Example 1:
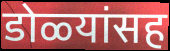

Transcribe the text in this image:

डोळ्यांसह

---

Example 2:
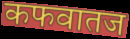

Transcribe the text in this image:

कफवातज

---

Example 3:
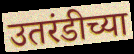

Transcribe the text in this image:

उतरंडीच्या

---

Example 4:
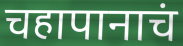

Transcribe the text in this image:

चहापानाचं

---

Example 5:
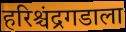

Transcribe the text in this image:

हरिश्चंद्रगडाला